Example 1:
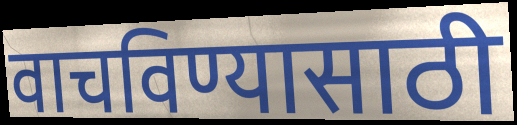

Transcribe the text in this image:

वाचविण्यासाठी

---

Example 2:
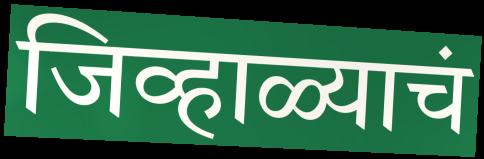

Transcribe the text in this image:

जिव्हाळ्याचं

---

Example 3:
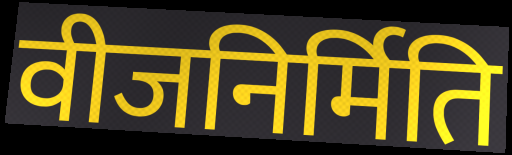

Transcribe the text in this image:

वीजनिर्मिति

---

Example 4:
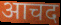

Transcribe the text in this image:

आचद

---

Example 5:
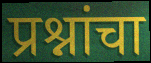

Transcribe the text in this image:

प्रश्नांचा